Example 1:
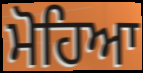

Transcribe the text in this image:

ਮੋਹਿਆ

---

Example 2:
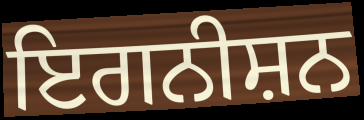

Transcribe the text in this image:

ਇਗਨੀਸ਼ਨ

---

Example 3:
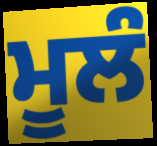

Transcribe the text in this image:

ਮੂਲੰ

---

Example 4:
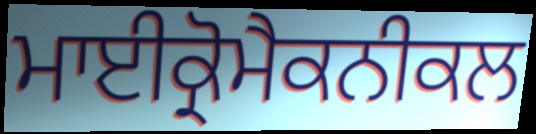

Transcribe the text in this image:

ਮਾਈਕ੍ਰੋਮੈਕਨੀਕਲ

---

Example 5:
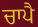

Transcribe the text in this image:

ਚਾਪੈ